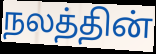
நலத்தின்